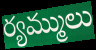
ర్యమ్ములు